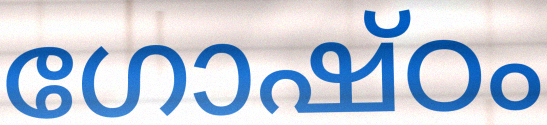
ഗോഷ്ഠം